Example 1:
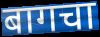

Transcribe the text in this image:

बागचा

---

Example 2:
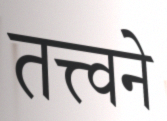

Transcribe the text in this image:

तत्त्वने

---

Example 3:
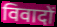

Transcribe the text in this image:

विवादों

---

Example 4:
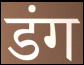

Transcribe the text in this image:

डंग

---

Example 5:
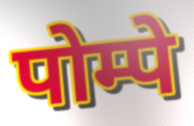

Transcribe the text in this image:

पोम्पे